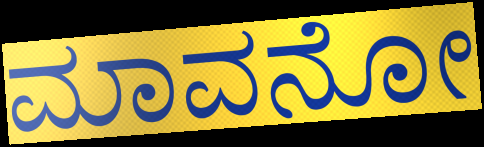
ಮಾವನೋ